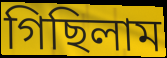
গিছিলাম